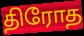
திரோத